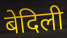
बेदिली